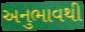
અનુભાવથી